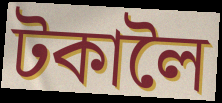
টকালৈ